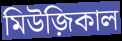
মিউজ়িকাল